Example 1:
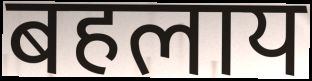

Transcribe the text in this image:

बहलाय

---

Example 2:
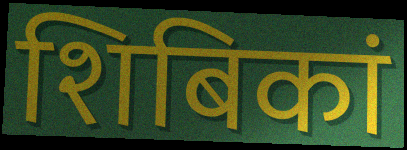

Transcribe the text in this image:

शिबिकां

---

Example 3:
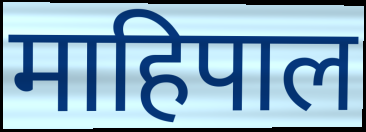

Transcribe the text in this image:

माहिपाल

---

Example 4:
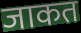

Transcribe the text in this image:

जाकत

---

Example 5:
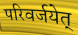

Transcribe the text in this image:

परिवर्जयेत्